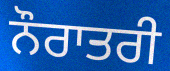
ਨੌਰਾਤਰੀ